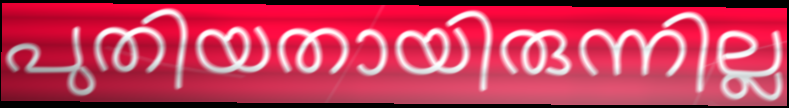
പുതിയതായിരുന്നില്ല